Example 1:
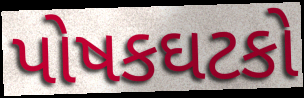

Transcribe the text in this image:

પોષકઘટકો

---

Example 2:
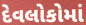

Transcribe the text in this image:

દેવલોકોમાં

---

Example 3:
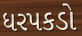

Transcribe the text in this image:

ધરપકડો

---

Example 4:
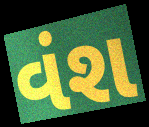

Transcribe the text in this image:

વંશ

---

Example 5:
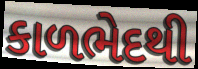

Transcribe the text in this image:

કાળભેદથી